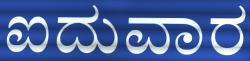
ಐದುವಾರ